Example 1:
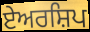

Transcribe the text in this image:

ਏਅਰਸ਼ਿਪ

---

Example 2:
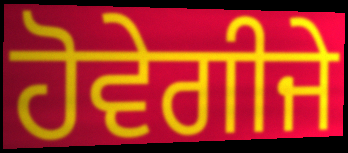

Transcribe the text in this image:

ਹੋਵੇਗੀਜੇ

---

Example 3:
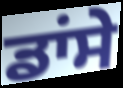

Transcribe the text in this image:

ਡਾਂਸੇ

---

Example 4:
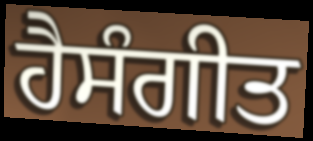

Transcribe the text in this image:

ਹੈਸੰਗੀਤ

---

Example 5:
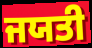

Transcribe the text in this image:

ਜਯਤੀ